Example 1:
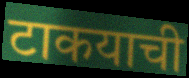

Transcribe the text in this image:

टाकयाची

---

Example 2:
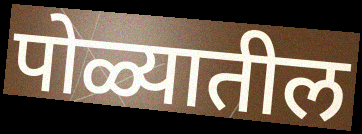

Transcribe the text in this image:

पोळ्यातील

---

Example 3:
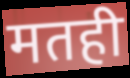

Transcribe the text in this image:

मतही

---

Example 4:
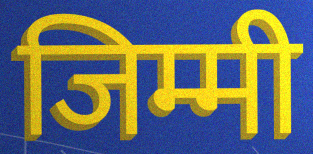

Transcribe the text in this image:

जिम्मी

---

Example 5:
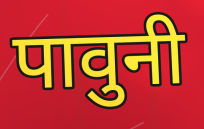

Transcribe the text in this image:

पावुनी